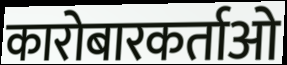
कारोबारकर्ताओ